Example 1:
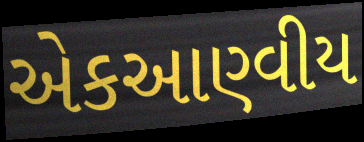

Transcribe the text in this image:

એકઆણ્વીય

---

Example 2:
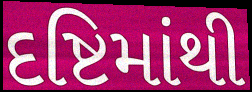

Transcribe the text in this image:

દષ્ટિમાંથી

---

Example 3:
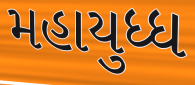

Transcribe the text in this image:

મહાયુધ્ધ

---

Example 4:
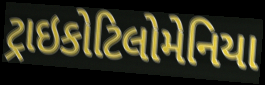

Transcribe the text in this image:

ટ્રાઇકોટિલોમેનિયા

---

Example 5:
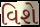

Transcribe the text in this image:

વિશે